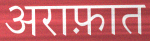
अराफ़ात